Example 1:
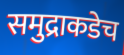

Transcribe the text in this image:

समुद्राकडेच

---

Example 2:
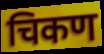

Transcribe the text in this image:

चिकण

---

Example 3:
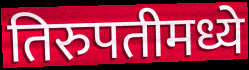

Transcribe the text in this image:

तिरुपतीमध्ये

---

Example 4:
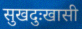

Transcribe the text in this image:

सुखदुःखासी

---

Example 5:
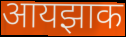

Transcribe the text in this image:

आयझाक